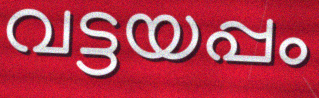
വട്ടയപ്പം